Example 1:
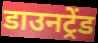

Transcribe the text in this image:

डाउनट्रेंड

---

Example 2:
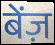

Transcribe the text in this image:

बेंज़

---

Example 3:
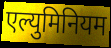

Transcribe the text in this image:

एल्युमिनियम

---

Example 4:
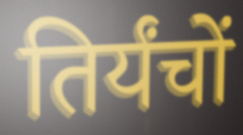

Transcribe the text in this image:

तिर्यंचों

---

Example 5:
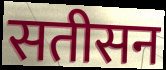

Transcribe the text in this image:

सतीसन